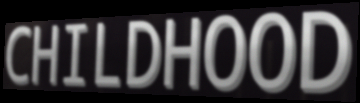
CHILDHOOD